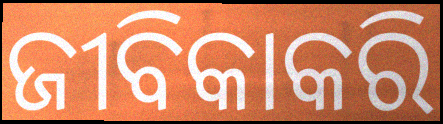
ଜୀବିକାକରି